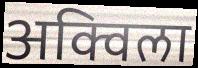
अक्विला